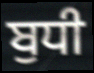
ਬੁਧੀ